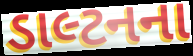
ડાલ્ટનના